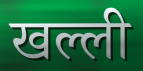
खल्ली